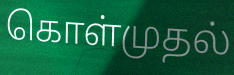
கொள்முதல்